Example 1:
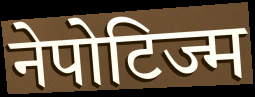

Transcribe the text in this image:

नेपोटिज्म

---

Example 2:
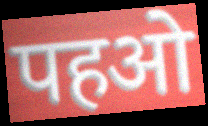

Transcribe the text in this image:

पहओ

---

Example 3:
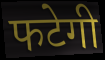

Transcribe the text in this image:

फटेगी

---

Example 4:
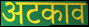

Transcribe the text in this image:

अटकाव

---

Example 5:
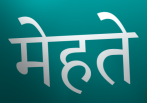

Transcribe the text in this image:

मेहते